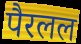
पैरलल